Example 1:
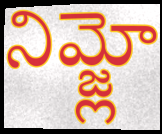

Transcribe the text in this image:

నిమ్జ్లో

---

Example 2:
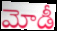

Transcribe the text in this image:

మోడీ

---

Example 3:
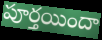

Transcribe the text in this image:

పూర్తయిందా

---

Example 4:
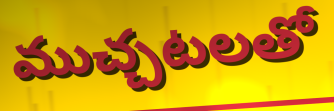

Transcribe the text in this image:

ముచ్చటలతో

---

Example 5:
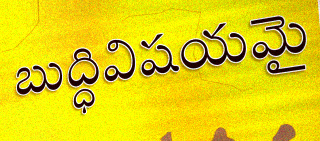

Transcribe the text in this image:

బుద్ధివిషయమై